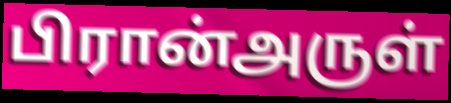
பிரான்அருள்